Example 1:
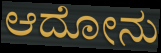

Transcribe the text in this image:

ಆದೋನು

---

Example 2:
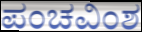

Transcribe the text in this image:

ಪಂಚವಿಂಶ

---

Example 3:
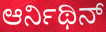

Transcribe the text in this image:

ಆರ್ನಿಥಿನ್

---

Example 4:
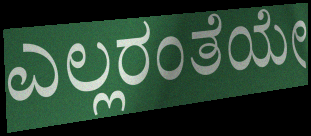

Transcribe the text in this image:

ಎಲ್ಲರಂತೆಯೇ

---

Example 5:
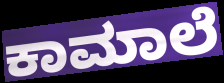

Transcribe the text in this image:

ಕಾಮಾಲೆ